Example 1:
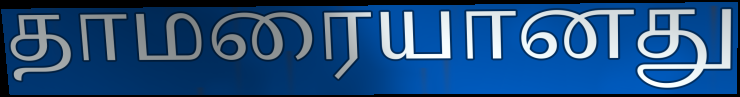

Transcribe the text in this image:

தாமரையானது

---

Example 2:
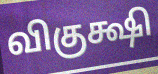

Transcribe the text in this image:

விகுக்ஷி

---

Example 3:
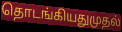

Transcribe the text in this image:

தொடங்கியதுமுதல்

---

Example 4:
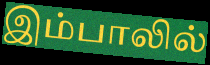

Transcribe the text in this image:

இம்பாலில்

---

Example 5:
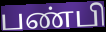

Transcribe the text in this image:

பண்பி